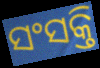
ସଂସକ୍ତି